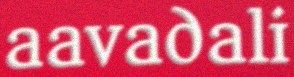
aavadali